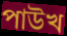
পাউখ